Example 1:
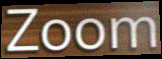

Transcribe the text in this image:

Zoom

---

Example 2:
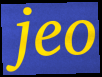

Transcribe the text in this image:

jeo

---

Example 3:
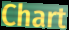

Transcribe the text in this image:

Chart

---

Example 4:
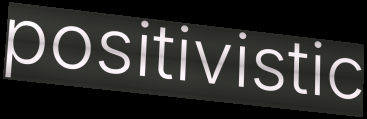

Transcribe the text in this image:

positivistic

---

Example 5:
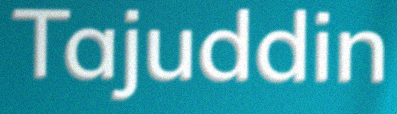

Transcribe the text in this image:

Tajuddin